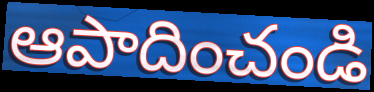
ఆపాదించండి